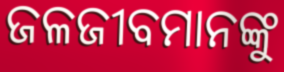
ଜଳଜୀବମାନଙ୍କୁ